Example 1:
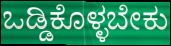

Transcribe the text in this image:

ಒಡ್ಡಿಕೊಳ್ಳಬೇಕು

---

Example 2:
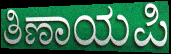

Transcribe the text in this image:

ತಿಣಾಯಪಿ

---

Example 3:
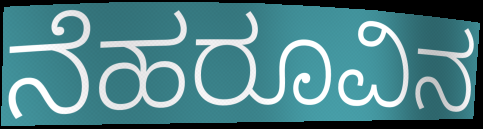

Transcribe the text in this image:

ನೆಹರೂವಿನ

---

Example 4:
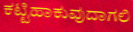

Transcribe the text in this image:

ಕಟ್ಟಿಹಾಕುವುದಾಗಲಿ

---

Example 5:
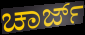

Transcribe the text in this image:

ಚಾರ್ಜ್